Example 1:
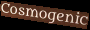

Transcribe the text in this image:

Cosmogenic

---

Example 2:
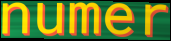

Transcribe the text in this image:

numer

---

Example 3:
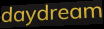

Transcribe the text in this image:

daydream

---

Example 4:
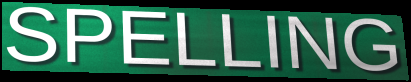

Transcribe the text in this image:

SPELLING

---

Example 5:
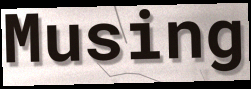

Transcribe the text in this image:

Musing